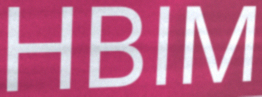
HBIM